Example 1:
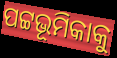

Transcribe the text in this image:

ପଟ୍ଟଭୂମିକାକୁ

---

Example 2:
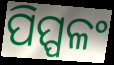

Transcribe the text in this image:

ପିପ୍ପଳଂ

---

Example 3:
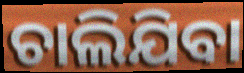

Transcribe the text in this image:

ଚାଲିଯିବା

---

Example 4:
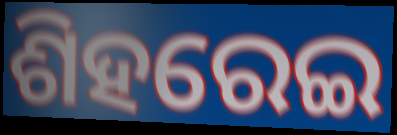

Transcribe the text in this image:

ଶିହରେଇ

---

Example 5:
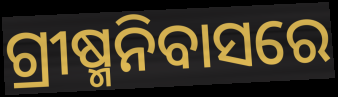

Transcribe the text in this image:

ଗ୍ରୀଷ୍ମନିବାସରେ